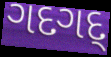
ગદગદ્